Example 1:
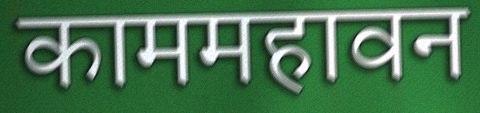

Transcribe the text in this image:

काममहावन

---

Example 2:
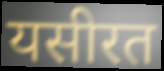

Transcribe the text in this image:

यसीरत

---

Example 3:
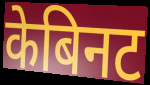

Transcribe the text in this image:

केबिनट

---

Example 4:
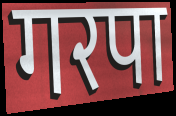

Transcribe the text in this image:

गरपा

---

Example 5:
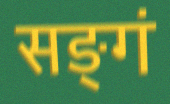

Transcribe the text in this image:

सङ्गं